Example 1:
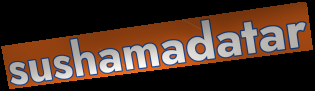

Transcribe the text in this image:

sushamadatar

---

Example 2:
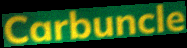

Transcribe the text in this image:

Carbuncle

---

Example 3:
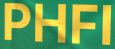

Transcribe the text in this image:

PHFI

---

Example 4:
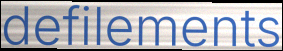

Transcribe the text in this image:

defilements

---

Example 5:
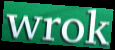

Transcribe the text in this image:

wrok